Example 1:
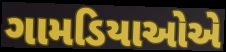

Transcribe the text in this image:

ગામડિયાઓએ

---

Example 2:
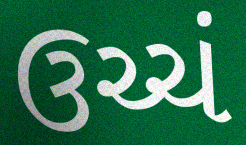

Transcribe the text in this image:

ઉચ્ચં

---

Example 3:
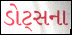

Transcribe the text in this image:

ડોટ્સના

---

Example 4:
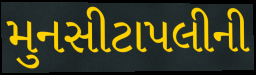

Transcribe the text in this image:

મુનસીટાપલીની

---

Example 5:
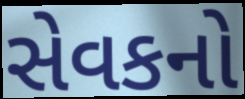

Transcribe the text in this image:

સેવકનો